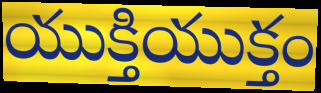
యుక్తియుక్తం